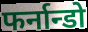
फर्नान्डो